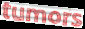
tumors